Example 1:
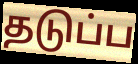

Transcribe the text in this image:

தடுப்ப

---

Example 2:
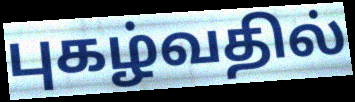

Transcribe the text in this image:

புகழ்வதில்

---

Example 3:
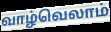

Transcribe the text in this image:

வாழ்வெலாம்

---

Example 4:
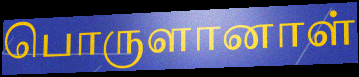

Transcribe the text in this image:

பொருளானாள்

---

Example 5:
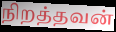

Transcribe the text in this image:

நிறத்தவன்